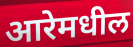
आरेमधील